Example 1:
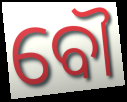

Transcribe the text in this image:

ବୌ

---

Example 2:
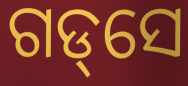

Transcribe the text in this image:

ଗଡ୍‌ସେ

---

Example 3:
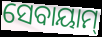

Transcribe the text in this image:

ସେବାୟାମ୍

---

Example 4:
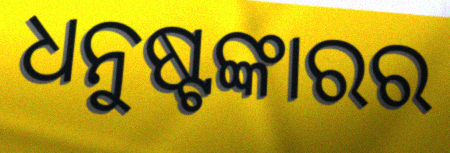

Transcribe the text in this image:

ଧନୁଷ୍ଟଙ୍କାରର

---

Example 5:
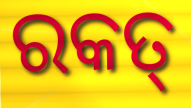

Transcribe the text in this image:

ରକତ୍